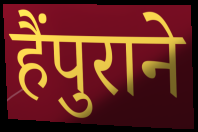
हैंपुराने